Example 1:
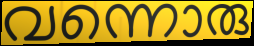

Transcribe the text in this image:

വന്നൊരു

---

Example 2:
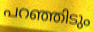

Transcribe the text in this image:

പറഞ്ഞിടും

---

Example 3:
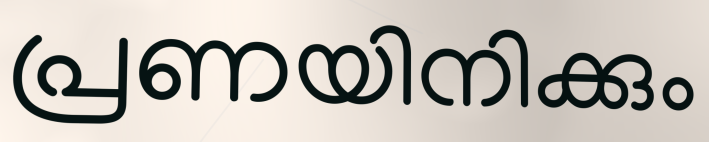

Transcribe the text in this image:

പ്രണയിനിക്കും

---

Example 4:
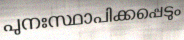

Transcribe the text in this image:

പുനഃസ്ഥാപിക്കപ്പെടും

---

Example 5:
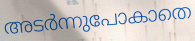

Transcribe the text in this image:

അടർന്നുപോകാതെ